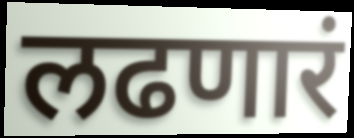
लढणारं